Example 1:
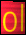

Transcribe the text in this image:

ol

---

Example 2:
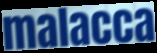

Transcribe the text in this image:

malacca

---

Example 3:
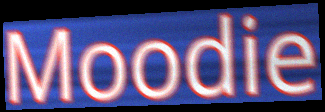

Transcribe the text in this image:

Moodie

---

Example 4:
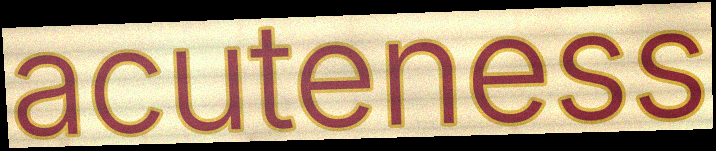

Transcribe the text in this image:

acuteness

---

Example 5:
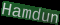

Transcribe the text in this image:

Hamdun